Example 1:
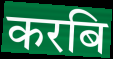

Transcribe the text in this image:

करबि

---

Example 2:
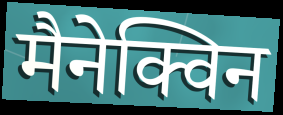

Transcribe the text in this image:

मैनेक्विन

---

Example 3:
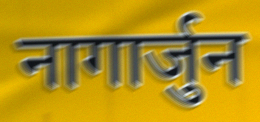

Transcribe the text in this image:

नागार्जुन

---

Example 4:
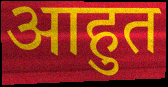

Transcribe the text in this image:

आहुत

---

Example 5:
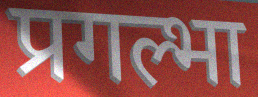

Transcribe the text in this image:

प्रगल्भा